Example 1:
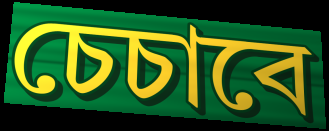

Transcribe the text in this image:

চেচাবে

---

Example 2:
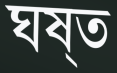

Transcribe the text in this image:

ঘষ্ত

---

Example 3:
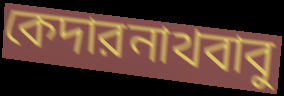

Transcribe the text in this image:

কেদারনাথবাবু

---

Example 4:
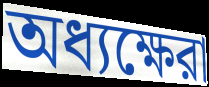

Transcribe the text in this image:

অধ্যক্ষেরা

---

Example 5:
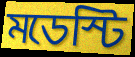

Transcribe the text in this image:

মডেস্টি